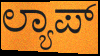
ಲ್ಯಾಪ್